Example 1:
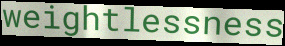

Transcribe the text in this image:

weightlessness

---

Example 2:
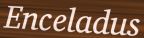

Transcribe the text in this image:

Enceladus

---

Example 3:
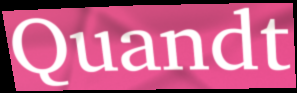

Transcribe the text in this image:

Quandt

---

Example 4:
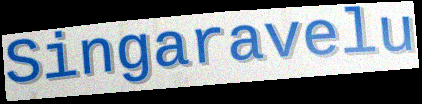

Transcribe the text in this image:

Singaravelu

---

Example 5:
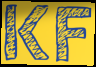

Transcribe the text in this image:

KF